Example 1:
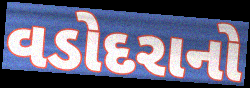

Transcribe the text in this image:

વડોદરાનો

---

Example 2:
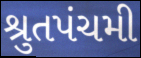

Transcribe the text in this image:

શ્રુતપંચમી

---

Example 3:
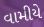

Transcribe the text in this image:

વામીયે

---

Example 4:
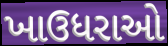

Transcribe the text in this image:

ખાઉધરાઓ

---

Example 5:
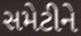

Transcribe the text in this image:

સમેટીને